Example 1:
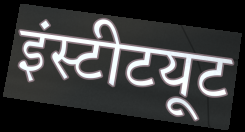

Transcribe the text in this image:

इंस्टीटयूट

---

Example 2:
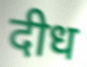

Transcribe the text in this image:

दीध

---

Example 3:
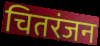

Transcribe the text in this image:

चितरंजन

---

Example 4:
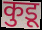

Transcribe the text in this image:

कुडू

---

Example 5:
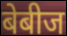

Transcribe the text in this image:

बेबीज